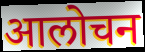
आलोचन